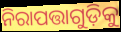
ନିରାପତ୍ତାଗୁଡ଼ିକୁ